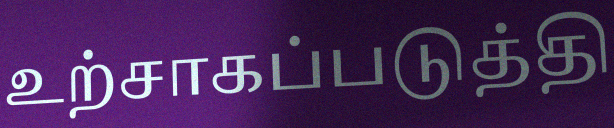
உற்சாகப்படுத்தி